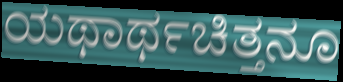
ಯಥಾರ್ಥಚಿತ್ತನೂ